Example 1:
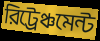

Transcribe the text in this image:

রিট্রেঞ্চমেন্ট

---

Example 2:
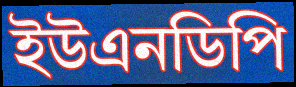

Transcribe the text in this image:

ইউএনডিপি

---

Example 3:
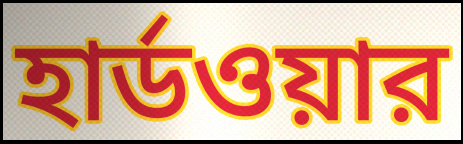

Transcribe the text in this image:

হার্ডওয়ার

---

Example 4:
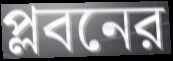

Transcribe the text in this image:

প্লবনের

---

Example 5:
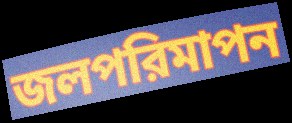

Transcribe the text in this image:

জলপরিমাপন